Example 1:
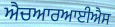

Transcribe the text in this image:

ਐਚਆਰਆਈਐਸ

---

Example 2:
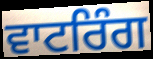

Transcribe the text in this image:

ਵਾਟਰਿੰਗ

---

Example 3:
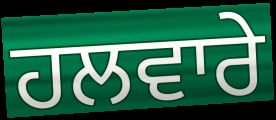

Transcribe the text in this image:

ਹਲਵਾਰੇ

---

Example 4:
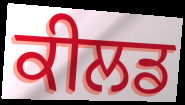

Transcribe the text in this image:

ਕੀਲਡ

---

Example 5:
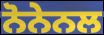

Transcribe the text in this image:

ਨੋਨੇਨਲ